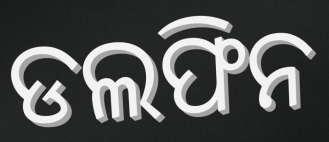
ଡଲଫିନ